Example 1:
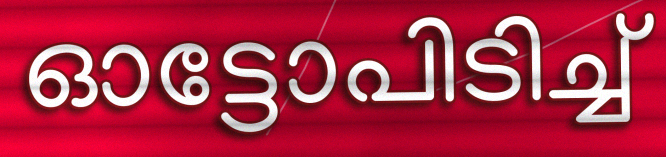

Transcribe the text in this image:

ഓട്ടോപിടിച്ച്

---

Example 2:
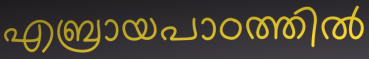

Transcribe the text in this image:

എബ്രായപാഠത്തിൽ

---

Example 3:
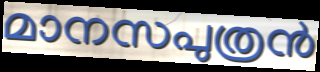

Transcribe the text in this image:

മാനസപുത്രൻ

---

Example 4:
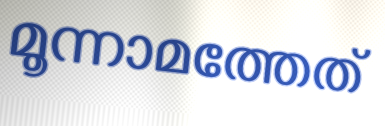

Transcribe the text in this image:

മൂന്നാമത്തേത്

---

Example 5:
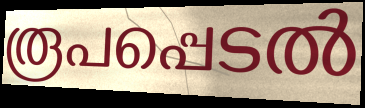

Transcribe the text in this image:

രൂപപ്പെടൽ